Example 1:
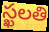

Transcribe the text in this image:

స్ఖలతి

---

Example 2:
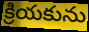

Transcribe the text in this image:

క్రియకును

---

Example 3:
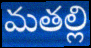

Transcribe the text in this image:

మతల్లి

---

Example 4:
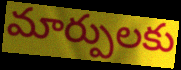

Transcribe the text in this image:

మార్పులకు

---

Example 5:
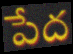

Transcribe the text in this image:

పేద